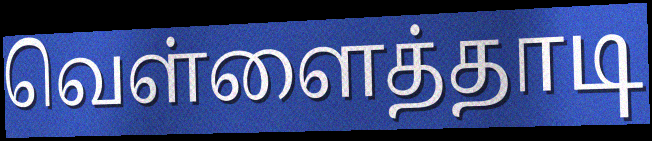
வெள்ளைத்தாடி